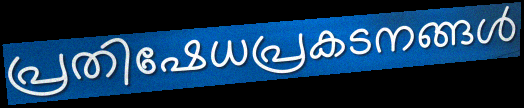
പ്രതിഷേധപ്രകടനങ്ങൾ